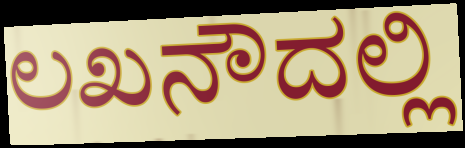
ಲಖನೌದಲ್ಲಿ